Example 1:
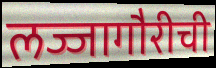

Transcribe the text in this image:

लज्जागौरीची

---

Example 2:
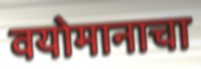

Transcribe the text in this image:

वयोमानाचा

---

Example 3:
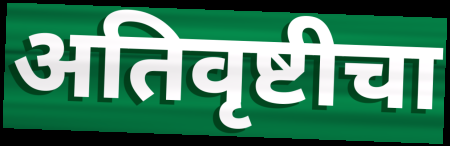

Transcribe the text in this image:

अतिवृष्टीचा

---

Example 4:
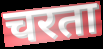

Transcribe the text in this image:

चरता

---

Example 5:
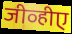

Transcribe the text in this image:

जीव्हीए